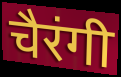
चैरंगी